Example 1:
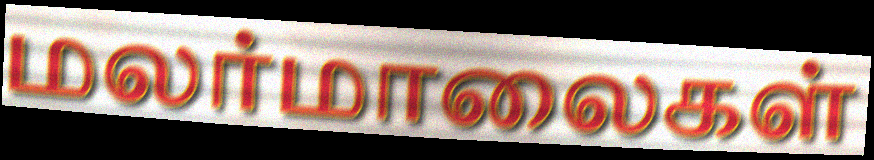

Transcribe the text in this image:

மலர்மாலைகள்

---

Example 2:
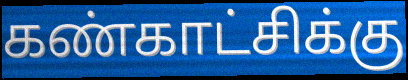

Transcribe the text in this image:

கண்காட்சிக்கு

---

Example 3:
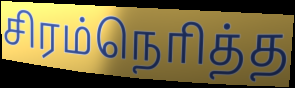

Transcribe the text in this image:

சிரம்நெரித்த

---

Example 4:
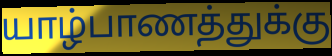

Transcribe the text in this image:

யாழ்பாணத்துக்கு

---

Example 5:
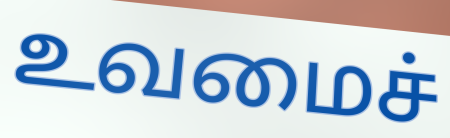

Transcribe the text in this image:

உவமைச்